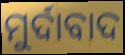
ମୁର୍ଦାବାଦ